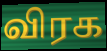
விரக